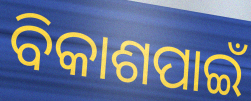
ବିକାଶପାଇଁ